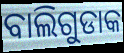
ବାଲିଗୁଡାକ